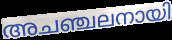
അചഞ്ചലനായി